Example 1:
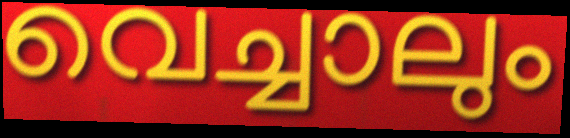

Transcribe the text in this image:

വെച്ചാലും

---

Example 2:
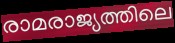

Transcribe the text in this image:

രാമരാജ്യത്തിലെ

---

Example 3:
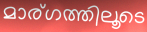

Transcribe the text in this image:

മാര്ഗത്തിലൂടെ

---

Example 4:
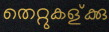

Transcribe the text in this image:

തെറ്റുകള്ക്കു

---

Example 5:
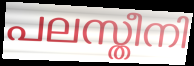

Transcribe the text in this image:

പലസ്തീനി